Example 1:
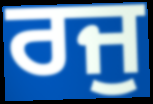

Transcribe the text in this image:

ਰਜੁ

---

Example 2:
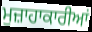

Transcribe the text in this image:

ਮੁਜ਼ਾਹਾਕਾਰੀਆਂ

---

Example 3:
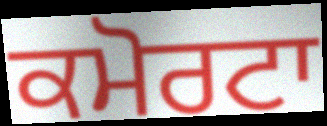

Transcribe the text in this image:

ਕਮੋਰਟਾ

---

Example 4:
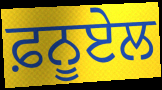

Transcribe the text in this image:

ਫ਼ਨੂਏਲ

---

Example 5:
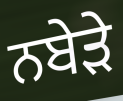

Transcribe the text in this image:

ਨਬੇੜੇ